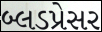
બ્લડપ્રેસર